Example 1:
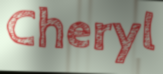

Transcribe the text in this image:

Cheryl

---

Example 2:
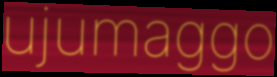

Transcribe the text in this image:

ujumaggo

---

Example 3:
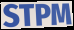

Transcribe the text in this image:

STPM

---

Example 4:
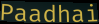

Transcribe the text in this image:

Paadhai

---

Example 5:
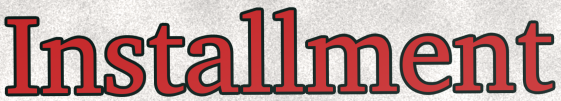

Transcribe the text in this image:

Installment